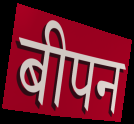
बीपन